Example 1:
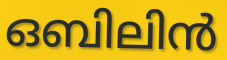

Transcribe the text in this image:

ഒബിലിൻ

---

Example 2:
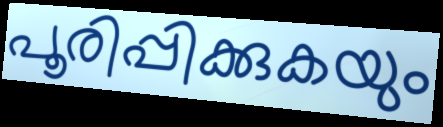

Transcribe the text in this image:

പൂരിപ്പിക്കുകയും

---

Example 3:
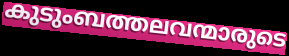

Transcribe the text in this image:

കുടുംബത്തലവന്മാരുടെ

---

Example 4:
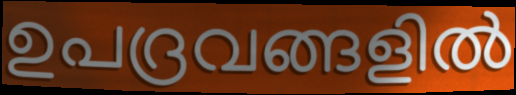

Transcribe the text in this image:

ഉപദ്രവങ്ങളിൽ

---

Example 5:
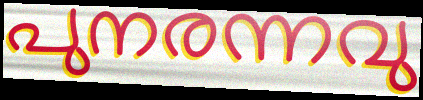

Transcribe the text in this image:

പുനരന്നവു